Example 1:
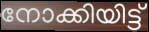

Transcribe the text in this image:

നോക്കിയിട്ട്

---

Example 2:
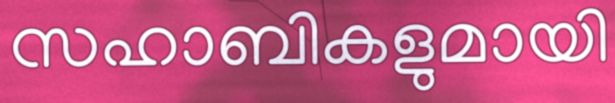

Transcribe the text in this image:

സഹാബികളുമായി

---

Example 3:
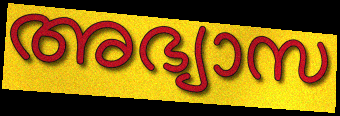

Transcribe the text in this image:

അഭ്യാസ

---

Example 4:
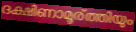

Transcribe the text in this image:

ദക്ഷിണാമൂര്ത്തിയും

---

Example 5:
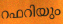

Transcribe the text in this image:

റഫറിയും